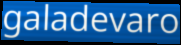
galadevaro